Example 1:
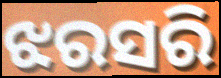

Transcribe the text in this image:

ଝରସରି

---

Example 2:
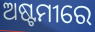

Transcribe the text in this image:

ଅଷ୍ଟମୀରେ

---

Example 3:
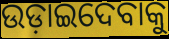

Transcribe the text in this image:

ଉଡ଼ାଇଦେବାକୁ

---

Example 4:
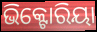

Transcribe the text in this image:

ଭିକ୍ଟୋରିୟା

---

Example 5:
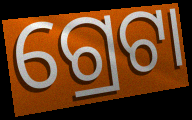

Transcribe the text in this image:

ଗ୍ରେଟା